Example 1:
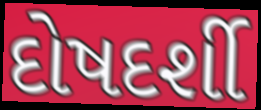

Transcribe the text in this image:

દોષદર્શી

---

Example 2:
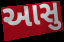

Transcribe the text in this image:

આસુ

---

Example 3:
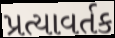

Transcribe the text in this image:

પ્રત્યાવર્તક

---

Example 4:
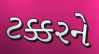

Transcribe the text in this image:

ટક્કરને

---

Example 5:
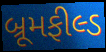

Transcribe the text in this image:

બ્રૂમફીલ્ડ